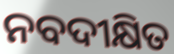
ନବଦୀକ୍ଷିତ